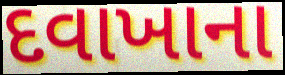
દવાખાના